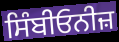
ਸਿੰਬੀਓਨੀਜ਼